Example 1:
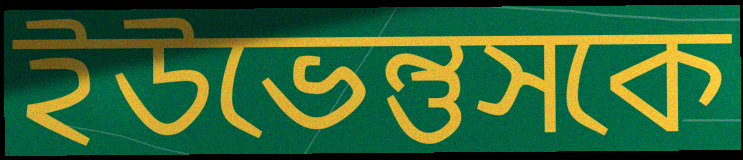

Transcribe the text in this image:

ইউভেন্তুসকে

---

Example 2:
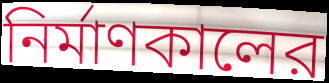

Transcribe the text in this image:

নির্মাণকালের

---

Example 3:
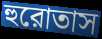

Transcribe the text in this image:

হুরোতাস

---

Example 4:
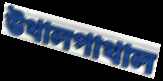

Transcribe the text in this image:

উথালপাথাল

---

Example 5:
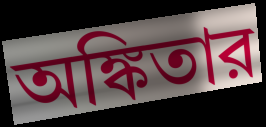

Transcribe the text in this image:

অঙ্কিতার